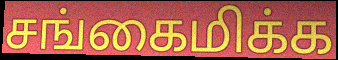
சங்கைமிக்க